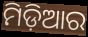
ମିଡ଼ିଆର